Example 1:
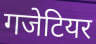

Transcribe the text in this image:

गजेटियर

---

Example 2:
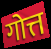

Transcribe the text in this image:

गोत्त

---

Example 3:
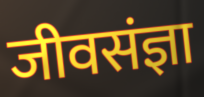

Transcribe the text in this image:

जीवसंज्ञा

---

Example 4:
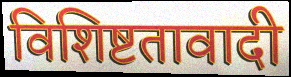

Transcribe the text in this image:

विशिष्टतावादी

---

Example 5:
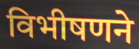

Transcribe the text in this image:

विभीषणने